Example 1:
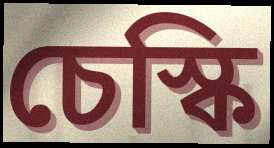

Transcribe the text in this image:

চেস্কি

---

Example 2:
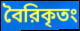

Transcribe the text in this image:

বৈরিকৃতং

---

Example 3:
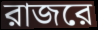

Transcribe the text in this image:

রাজরে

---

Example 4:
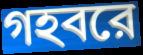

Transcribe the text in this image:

গহবরে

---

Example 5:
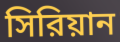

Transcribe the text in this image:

সিরিয়ান